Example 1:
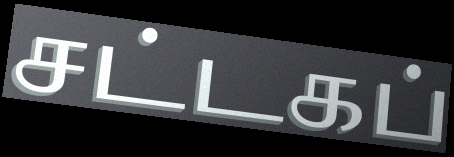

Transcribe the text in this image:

சட்டகப்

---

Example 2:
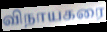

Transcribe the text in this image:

விநாயகரை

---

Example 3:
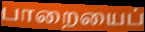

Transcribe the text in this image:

பாறையைப்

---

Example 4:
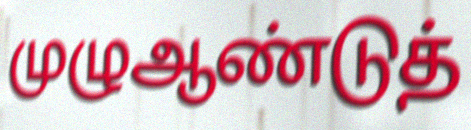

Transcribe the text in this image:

முழுஆண்டுத்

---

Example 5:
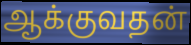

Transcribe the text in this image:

ஆக்குவதன்